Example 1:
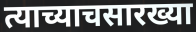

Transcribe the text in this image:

त्याच्याचसारख्या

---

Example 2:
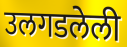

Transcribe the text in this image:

उलगडलेली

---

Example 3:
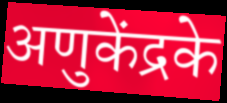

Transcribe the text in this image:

अणुकेंद्रके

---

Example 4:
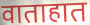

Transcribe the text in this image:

वाताहात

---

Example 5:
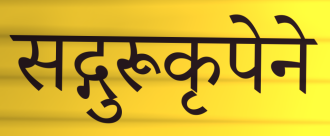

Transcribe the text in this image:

सद्गुरूकृपेने